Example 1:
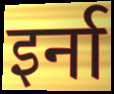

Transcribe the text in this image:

इर्ना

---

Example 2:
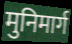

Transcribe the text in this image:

मुनिमार्ग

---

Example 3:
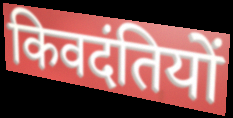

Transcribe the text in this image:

किवदंतियों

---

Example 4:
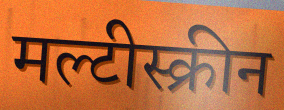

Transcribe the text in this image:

मल्टीस्क्रीन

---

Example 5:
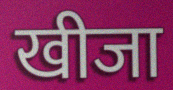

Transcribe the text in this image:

खीजा